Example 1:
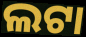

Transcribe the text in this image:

ଲଟା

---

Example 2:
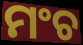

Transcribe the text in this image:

ମଂଚ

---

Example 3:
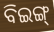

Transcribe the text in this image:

ବିଇଙ୍ଗ୍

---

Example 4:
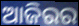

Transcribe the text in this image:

ଆଜିରର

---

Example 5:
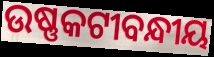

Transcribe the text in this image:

ଉଷ୍ଣକଟୀବନ୍ଧୀୟ